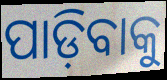
ପାଡ଼ିବାକୁ